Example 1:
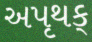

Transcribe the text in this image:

અપૃથક્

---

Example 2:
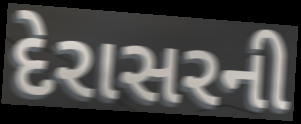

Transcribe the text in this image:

દેરાસરની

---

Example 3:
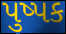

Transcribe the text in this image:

પુષ્પક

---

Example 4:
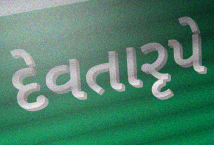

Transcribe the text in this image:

દેવતારૃપે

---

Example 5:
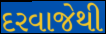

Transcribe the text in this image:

દરવાજેથી